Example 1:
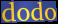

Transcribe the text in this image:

dodo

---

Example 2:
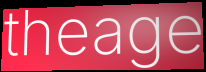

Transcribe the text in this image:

theage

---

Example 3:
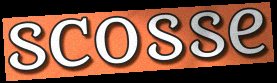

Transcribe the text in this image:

scosse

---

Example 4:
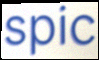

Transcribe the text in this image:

spic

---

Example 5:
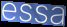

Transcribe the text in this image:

essa